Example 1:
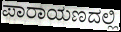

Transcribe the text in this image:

ಪಾರಾಯಣದಲ್ಲಿ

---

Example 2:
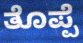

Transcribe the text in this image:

ತೊಪ್ಪೆ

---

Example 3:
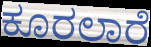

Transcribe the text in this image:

ಕೂರಲಾರೆ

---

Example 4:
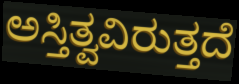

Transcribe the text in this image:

ಅಸ್ತಿತ್ವವಿರುತ್ತದೆ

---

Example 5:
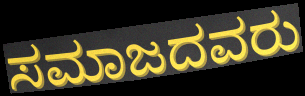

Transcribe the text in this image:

ಸಮಾಜದವರು